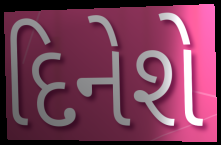
દિનેશે